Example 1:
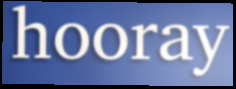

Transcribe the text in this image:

hooray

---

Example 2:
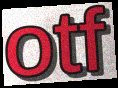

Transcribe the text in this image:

otf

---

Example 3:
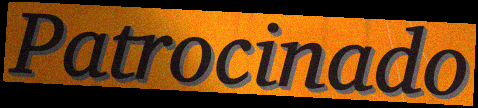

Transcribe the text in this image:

Patrocinado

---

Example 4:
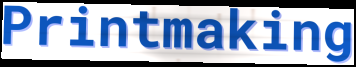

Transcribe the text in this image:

Printmaking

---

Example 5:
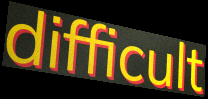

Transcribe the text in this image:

difficult